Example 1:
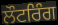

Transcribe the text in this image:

ਲੌਟਰਿੰਗ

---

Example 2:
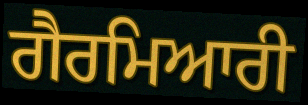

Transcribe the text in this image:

ਗੈਰਮਿਆਰੀ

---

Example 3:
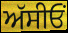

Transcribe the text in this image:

ਅੱਸੀਓਂ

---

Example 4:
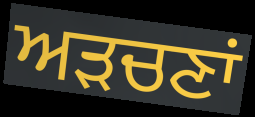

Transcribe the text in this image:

ਅੜਚਣਾਂ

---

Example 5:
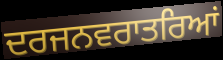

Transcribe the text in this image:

ਦਰਜਨਵਰਾਤਰਿਆਂ